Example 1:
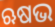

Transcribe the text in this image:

ଋଷଭ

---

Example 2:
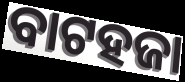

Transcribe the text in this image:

ବାଟହଜା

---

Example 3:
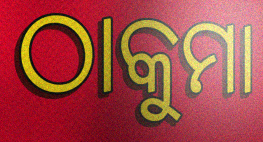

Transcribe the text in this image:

ଠାକୁମା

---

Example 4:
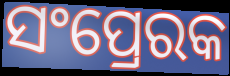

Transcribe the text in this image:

ସଂପ୍ରେରକ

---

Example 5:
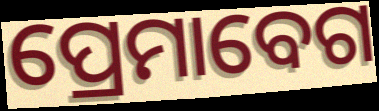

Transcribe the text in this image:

ପ୍ରେମାବେଗ